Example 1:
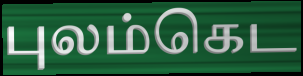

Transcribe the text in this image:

புலம்கெட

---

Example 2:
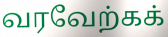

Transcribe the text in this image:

வரவேற்கக்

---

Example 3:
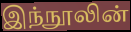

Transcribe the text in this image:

இந்நூலின்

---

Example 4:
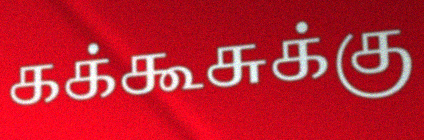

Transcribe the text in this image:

கக்கூசுக்கு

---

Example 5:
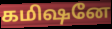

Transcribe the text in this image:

கமிஷனே